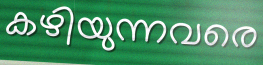
കഴിയുന്നവരെ